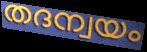
തദന്വയം